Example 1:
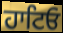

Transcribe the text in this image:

ਹਾਟਿਓ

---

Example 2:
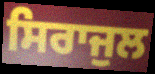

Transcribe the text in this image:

ਸਿਰਾਜੁਲ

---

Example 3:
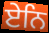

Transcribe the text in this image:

ਏਨਿ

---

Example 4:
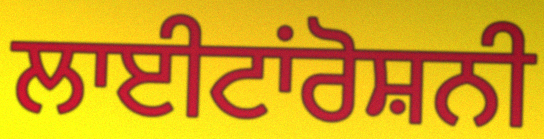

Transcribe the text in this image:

ਲਾਈਟਾਂਰੋਸ਼ਨੀ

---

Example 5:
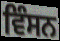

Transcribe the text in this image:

ਵਿੰਸਨ